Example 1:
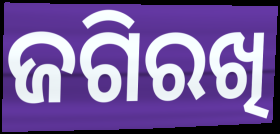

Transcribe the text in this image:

ଜଗିରଖି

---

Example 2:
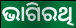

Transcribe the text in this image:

ଭାଗିରଥି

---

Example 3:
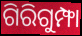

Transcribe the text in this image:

ଗିରିଗୁମ୍ଫା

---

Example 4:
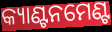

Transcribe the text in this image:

କ୍ୟାଣ୍ଟନମେଣ୍ଟ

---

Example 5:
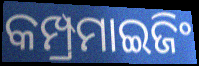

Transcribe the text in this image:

କମ୍ପ୍ରମାଇଜିଂ